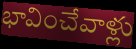
భావించేవాళ్లు